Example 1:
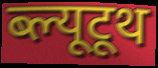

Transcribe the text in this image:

ब्ल्यूटूथ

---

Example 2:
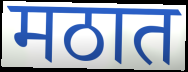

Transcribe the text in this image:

मठात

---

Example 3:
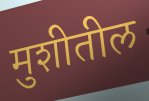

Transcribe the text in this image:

मुशीतील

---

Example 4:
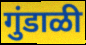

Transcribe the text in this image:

गुंडाळी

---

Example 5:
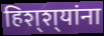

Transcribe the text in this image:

हिश्श्यांना